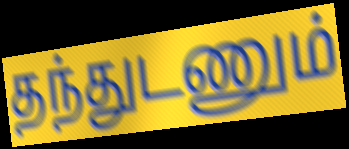
தந்துடணும்